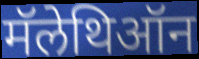
मॅलेथिऑन